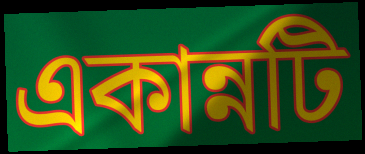
একান্নটি